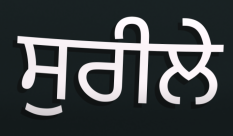
ਸੁਰੀਲੇ